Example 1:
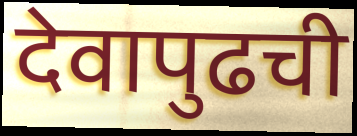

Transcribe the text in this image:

देवापुढची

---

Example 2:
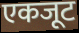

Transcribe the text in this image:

एकजूट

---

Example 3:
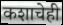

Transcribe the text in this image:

कशाचेही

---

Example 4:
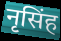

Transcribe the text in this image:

नृसिंह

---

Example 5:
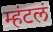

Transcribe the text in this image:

म्हंटलं